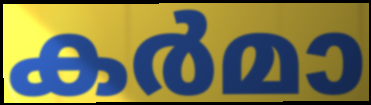
കർമാ